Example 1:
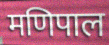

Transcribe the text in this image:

मणिपाल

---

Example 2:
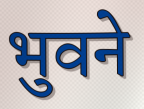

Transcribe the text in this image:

भुवने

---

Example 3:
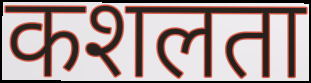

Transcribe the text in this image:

कशलता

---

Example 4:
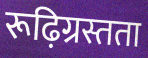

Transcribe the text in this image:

रूढ़िग्रस्तता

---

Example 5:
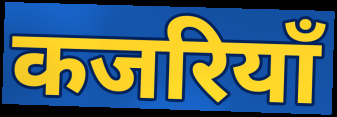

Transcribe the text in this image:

कजरियाँ